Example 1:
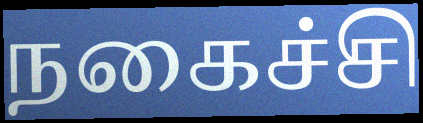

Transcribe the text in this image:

நகைச்சி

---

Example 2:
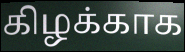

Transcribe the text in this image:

கிழக்காக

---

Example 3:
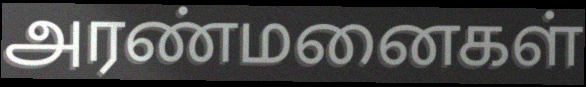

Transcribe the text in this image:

அரண்மனைகள்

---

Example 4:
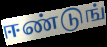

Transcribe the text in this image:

ஈண்டுங்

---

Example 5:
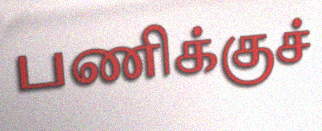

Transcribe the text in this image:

பணிக்குச்